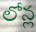
లోన్ల